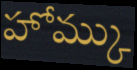
హోమ్కు